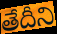
తేదీని